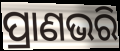
ପ୍ରାଣଭରି